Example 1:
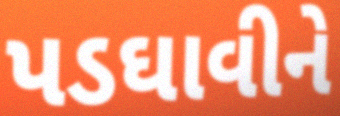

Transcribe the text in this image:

પડઘાવીને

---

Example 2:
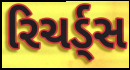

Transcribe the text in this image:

રિચર્ડ્સ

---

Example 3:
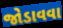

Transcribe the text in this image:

જોડાવવા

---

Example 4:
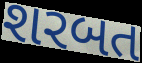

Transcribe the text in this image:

શરબત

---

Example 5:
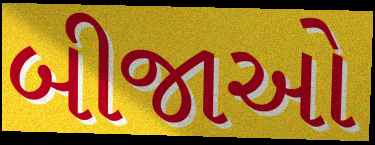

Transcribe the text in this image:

બીજાઓ